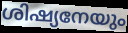
ശിഷ്യനേയും